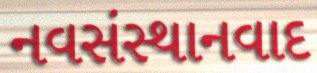
નવસંસ્થાનવાદ